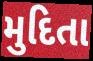
મુદિતા